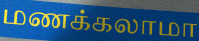
மணக்கலாமா